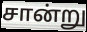
சான்று